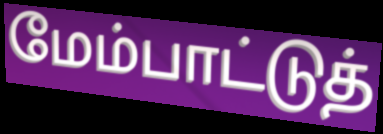
மேம்பாட்டுத்